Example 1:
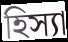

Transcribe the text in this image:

হিস্যা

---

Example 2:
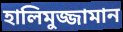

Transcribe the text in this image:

হালিমুজ্জামান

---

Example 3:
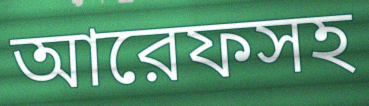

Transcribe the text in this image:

আরেফসহ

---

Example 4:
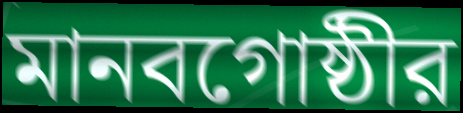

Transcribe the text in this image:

মানবগোষ্ঠীর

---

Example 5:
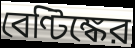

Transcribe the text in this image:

বেণ্টিঙ্কের